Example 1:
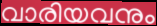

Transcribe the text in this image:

വാരിയവനും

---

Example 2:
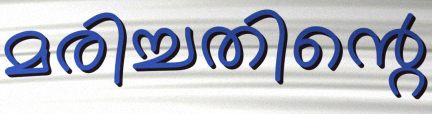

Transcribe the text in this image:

മരിച്ചതിന്റെ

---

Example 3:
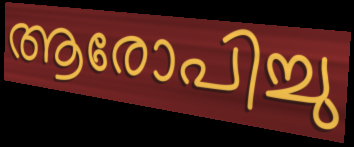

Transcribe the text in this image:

ആരോപിച്ചു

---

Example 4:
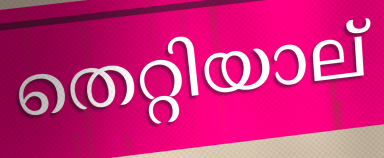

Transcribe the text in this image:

തെറ്റിയാല്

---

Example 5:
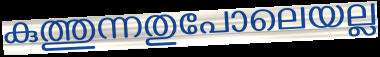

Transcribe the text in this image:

കുത്തുന്നതുപോലെയല്ല